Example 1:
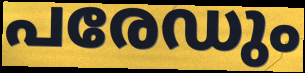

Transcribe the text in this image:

പരേഡും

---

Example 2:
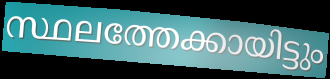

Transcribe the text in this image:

സ്ഥലത്തേക്കായിട്ടും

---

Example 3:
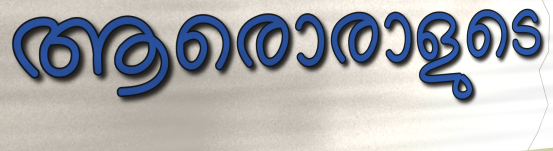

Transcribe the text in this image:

ആരൊരാളുടെ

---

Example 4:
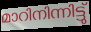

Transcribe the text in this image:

മാറിനിന്നിട്ടു്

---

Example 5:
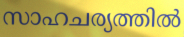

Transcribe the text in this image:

സാഹചര്യത്തിൽ